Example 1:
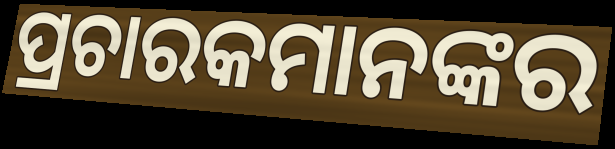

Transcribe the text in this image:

ପ୍ରଚାରକମାନଙ୍କର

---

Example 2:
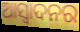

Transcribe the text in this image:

ଆସ୍ବାଦନର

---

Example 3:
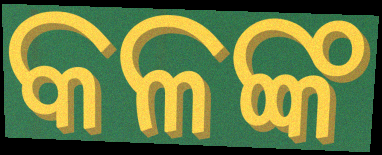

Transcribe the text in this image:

କଳଙ୍କ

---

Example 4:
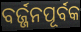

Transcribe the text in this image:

ବର୍ଜ୍ଜନପୂର୍ବକ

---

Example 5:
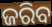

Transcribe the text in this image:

ଜରିବ